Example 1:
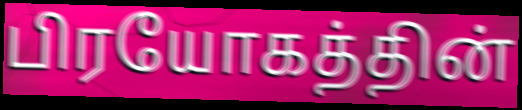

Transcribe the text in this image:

பிரயோகத்தின்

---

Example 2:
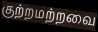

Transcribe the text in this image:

குற்றமற்றவை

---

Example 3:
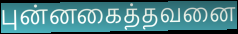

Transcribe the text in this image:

புன்னகைத்தவனை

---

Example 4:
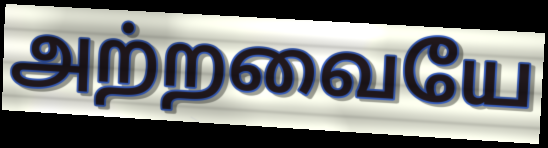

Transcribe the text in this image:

அற்றவையே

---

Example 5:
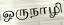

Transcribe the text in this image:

ஒருநாழி